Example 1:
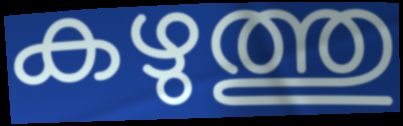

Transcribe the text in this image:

കഴുത്തു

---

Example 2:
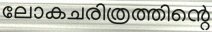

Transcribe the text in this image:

ലോകചരിത്രത്തിന്റെ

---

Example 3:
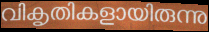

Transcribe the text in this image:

വികൃതികളായിരുന്നു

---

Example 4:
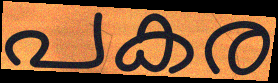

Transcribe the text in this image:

പകര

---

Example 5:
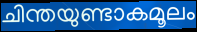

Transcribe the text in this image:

ചിന്തയുണ്ടാകമൂലം